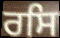
ਰਸਿ